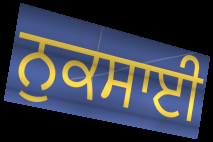
ਨੁਕਸਾਈ